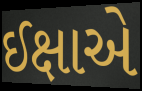
ઈક્ષાએ